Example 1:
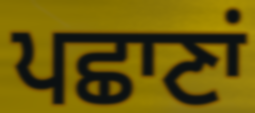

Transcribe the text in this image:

ਪਛਾਣਾਂ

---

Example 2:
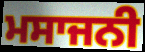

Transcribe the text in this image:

ਮਸਾਜਨੀ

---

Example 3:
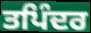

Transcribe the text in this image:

ਤਪਿੰਦਰ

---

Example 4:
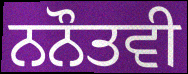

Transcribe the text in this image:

ਨਨੌਤਵੀ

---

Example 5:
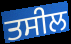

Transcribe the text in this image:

ਤਸੀਲ